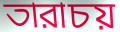
তারাচয়